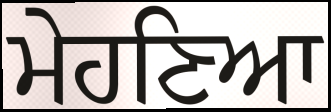
ਮੇਹਣਿਆ